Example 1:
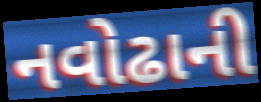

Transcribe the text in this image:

નવોઢાની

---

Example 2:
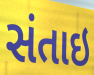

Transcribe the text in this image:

સંતાઇ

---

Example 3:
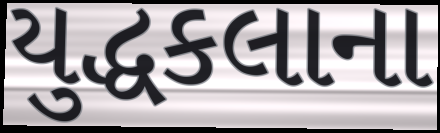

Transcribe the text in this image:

યુદ્ધકલાના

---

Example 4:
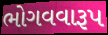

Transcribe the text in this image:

ભોગવવારૂપ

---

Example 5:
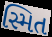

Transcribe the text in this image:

સ્મિત